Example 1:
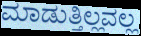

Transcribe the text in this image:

ಮಾಡುತ್ತಿಲ್ಲವಲ್ಲ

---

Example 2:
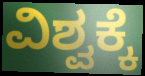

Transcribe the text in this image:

ವಿಶ್ವಕ್ಕೆ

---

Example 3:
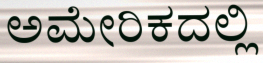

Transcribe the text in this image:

ಅಮೇರಿಕದಲ್ಲಿ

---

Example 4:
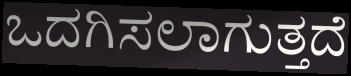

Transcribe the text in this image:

ಒದಗಿಸಲಾಗುತ್ತದೆ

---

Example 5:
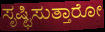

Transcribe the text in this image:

ಸೃಷ್ಟಿಸುತ್ತಾರೋ